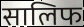
सालिफ